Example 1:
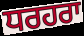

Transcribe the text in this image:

ਧਰਹਰਾ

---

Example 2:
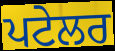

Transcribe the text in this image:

ਪਟੇਲਰ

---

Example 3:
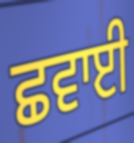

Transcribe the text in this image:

ਛਵਾਈ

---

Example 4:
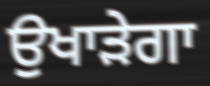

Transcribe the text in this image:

ਉਖਾੜੇਗਾ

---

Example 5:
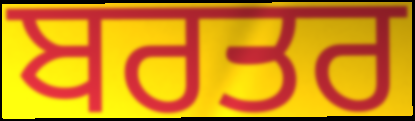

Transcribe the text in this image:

ਬਰਤਰ